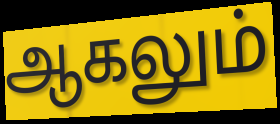
ஆகலும்